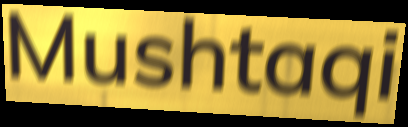
Mushtaqi